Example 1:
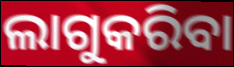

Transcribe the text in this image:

ଲାଗୁକରିବା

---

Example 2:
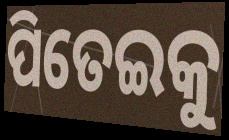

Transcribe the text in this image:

ପିତେଇକୁ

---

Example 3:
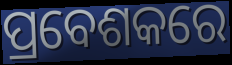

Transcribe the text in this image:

ପ୍ରବେଶକରେ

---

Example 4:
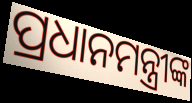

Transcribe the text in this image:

ପ୍ରଧାନମନ୍ତ୍ରୀଙ୍କ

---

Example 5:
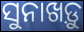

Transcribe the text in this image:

ସୁନାଖଡ଼ୁ